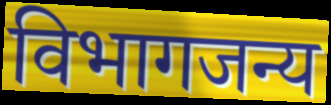
विभागजन्य